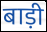
बाड़ी